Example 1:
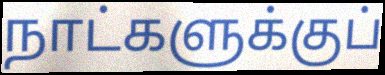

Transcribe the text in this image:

நாட்களுக்குப்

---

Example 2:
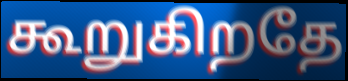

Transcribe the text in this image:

கூறுகிறதே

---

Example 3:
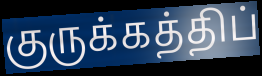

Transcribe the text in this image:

குருக்கத்திப்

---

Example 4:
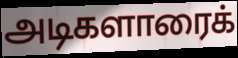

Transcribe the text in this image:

அடிகளாரைக்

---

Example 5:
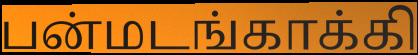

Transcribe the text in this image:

பன்மடங்காக்கி